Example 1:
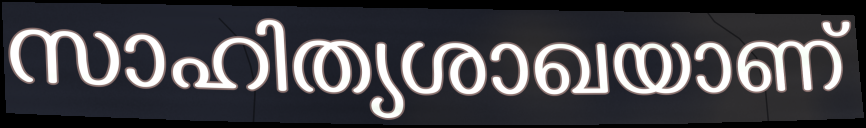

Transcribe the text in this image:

സാഹിത്യശാഖയാണ്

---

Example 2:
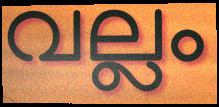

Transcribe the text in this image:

വല്ലം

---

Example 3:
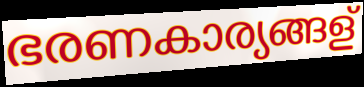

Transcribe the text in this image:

ഭരണകാര്യങ്ങള്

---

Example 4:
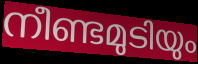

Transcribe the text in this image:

നീണ്ടമുടിയും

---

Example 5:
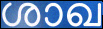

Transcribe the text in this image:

ശാഖ